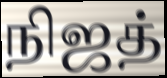
நிஜத்